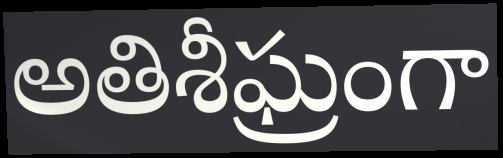
అతిశీఘ్రంగా